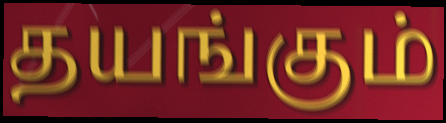
தயங்கும்